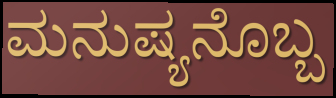
ಮನುಷ್ಯನೊಬ್ಬ